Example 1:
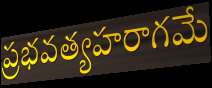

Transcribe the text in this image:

ప్రభవత్యహరాగమే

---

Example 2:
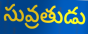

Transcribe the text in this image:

సువ్రతుడు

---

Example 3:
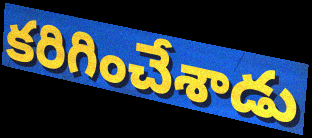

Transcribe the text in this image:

కరిగించేశాడు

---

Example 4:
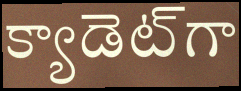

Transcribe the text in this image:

క్యాడెట్‌గా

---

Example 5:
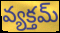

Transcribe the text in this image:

వ్యక్తమ్